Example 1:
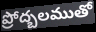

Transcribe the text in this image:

ప్రోద్బలముతో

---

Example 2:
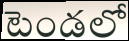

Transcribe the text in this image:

టెండలో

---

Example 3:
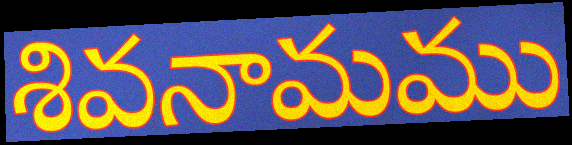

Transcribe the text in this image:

శివనామము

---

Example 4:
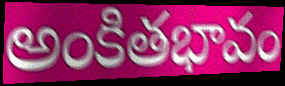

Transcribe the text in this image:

అంకితభావం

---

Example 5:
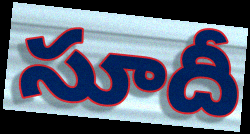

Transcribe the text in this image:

సూదీ